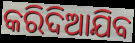
କରିଦିଆଯିବ